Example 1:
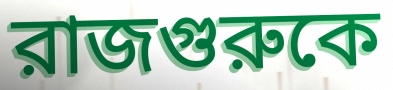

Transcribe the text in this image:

রাজগুরুকে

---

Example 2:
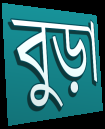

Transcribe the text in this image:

বুড়া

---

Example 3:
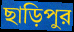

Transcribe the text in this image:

ছাড়িপুর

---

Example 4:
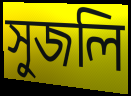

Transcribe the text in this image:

সুজলি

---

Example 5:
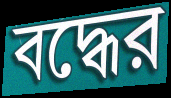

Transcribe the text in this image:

বদ্ধের